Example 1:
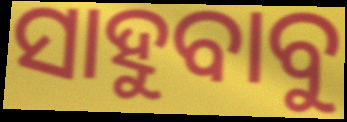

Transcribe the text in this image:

ସାହୁବାବୁ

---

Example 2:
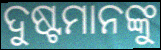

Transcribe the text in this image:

ଦୁଷ୍ଟମାନଙ୍କୁ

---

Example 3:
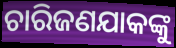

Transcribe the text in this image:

ଚାରିଜଣଯାକଙ୍କୁ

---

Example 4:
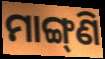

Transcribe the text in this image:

ମାଙ୍ଗ୍‌ଣି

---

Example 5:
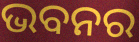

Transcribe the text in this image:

ଭବନର